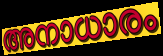
അനാധാരം